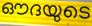
ഔദയുടെ